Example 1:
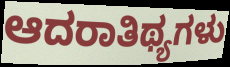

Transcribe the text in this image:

ಆದರಾತಿಥ್ಯಗಳು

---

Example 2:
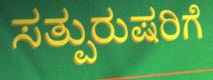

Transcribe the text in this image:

ಸತ್ಪುರುಷರಿಗೆ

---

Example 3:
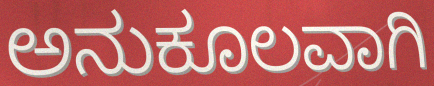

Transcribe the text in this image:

ಅನುಕೂಲವಾಗಿ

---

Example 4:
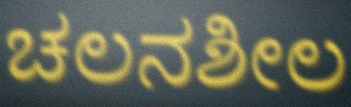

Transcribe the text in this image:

ಚಲನಶೀಲ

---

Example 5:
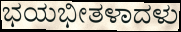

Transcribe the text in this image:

ಭಯಭೀತಳಾದಳು